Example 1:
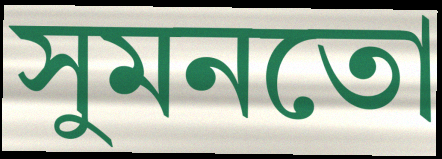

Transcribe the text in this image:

সুমনতো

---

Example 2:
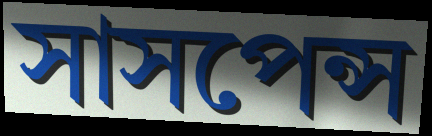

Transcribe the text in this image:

সাসপেন্স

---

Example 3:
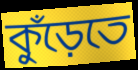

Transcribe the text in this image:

কুঁড়েতে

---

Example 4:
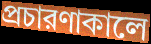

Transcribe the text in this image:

প্রচারণাকালে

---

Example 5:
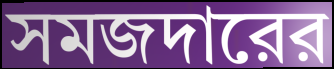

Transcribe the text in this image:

সমজদারের